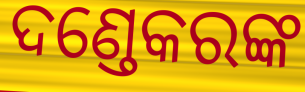
ଦଣ୍ଡେକରଙ୍କ